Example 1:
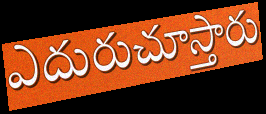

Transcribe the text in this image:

ఎదురుచూస్తారు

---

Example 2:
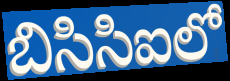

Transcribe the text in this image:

బిసిసిఐలో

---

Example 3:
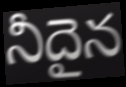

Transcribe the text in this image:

నీదైన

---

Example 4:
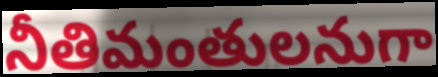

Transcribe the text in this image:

నీతిమంతులనుగా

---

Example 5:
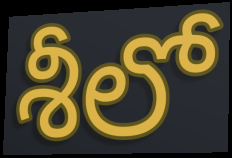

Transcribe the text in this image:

శీలో